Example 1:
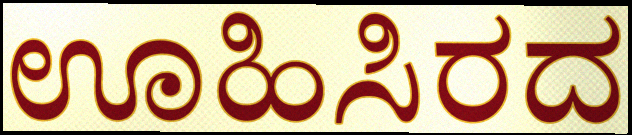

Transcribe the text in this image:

ಊಹಿಸಿರದ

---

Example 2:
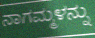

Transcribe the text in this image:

ನಾಗಮ್ಮಳನ್ನು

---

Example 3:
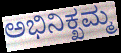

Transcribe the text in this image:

ಅಭಿನಿಕ್ಖಮ್ಮ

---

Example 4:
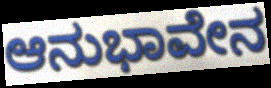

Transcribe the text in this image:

ಆನುಭಾವೇನ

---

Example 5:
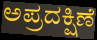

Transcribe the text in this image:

ಅಪ್ರದಕ್ಷಿಣೆ